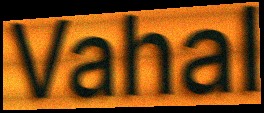
Vahal